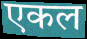
एकल